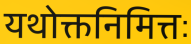
यथोक्तनिमित्तः